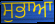
ਸੁਭਾਆ